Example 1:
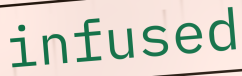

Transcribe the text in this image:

infused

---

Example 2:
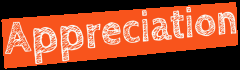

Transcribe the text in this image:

Appreciation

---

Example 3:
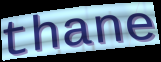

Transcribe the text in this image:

thane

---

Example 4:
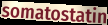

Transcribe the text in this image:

somatostatin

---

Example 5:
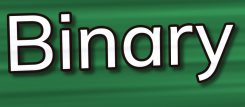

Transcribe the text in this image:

Binary